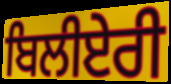
ਬਿਲੀਏਰੀ